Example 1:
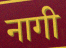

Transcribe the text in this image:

नागी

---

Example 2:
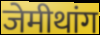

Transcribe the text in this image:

जेमीथांग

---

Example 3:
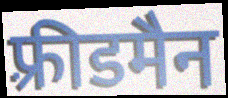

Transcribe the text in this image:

फ़्रीडमैन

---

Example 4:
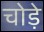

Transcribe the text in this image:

चोड़े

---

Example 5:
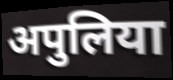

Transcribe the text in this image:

अपुलिया